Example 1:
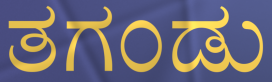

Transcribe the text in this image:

ತಗಂಡು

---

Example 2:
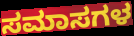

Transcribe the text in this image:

ಸಮಾಸಗಳ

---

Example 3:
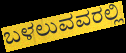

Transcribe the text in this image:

ಬಳಲುವವರಲ್ಲಿ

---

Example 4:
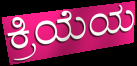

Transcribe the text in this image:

ಕ್ರಿಯೆಯ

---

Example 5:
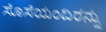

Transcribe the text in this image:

ಸೊಸೆಯಂದಿರನ್ನು